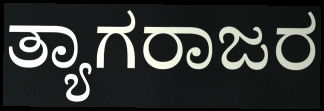
ತ್ಯಾಗರಾಜರ